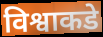
विश्वाकडे